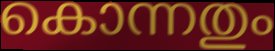
കൊന്നതും